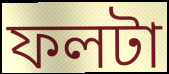
ফলটা